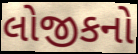
લોજીકનો